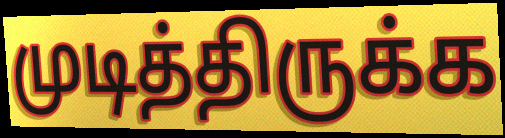
முடித்திருக்க